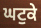
ਘਟੁਕੇ